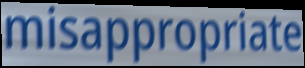
misappropriate